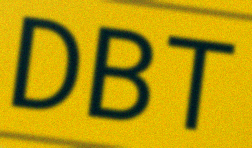
DBT